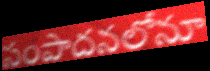
సంపాదనలోనూ